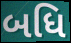
બધિ